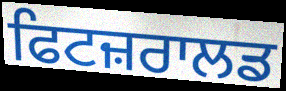
ਫਿਟਜ਼ਰਾਲਡ